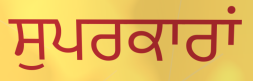
ਸੁਪਰਕਾਰਾਂ